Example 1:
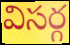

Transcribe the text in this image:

విసర్గ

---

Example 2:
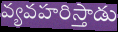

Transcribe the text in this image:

వ్యవహరిస్తాడు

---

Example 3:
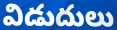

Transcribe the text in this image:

విడుదులు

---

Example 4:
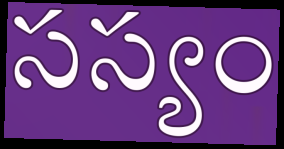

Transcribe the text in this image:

సస్యం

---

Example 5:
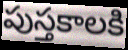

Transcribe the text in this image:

పుస్తకాలకి